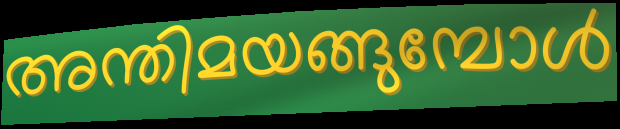
അന്തിമയങ്ങുമ്പോൾ